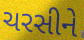
ચરસીને